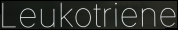
Leukotriene